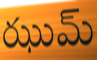
ఝుమ్